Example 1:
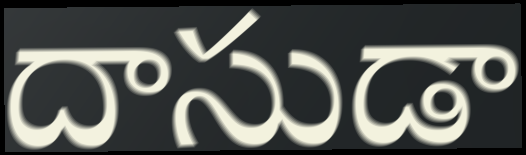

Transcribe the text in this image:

దాసుడా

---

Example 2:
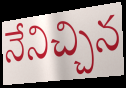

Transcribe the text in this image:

నేనిచ్చిన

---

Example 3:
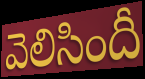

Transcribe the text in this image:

వెలిసిందీ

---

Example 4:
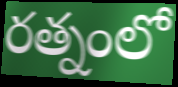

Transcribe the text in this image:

రత్నంలో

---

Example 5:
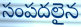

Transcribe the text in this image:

సంపదలైన